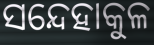
ସନ୍ଦେହାକୁଳ